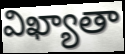
విఖ్యాతా